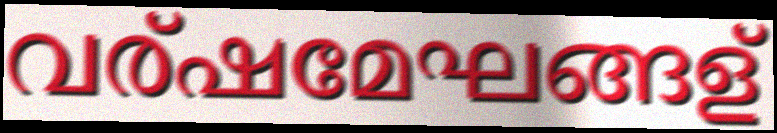
വര്ഷമേഘങ്ങള്